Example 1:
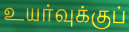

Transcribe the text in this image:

உயர்வுக்குப்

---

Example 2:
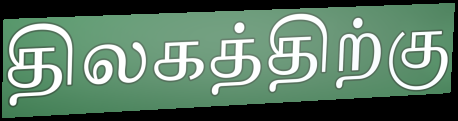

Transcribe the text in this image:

திலகத்திற்கு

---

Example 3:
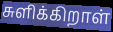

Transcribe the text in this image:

சுளிக்கிறாள்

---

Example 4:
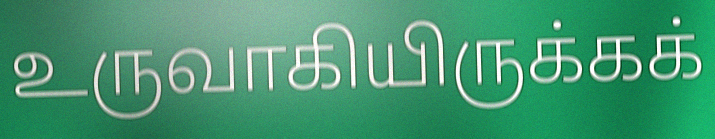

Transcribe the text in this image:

உருவாகியிருக்கக்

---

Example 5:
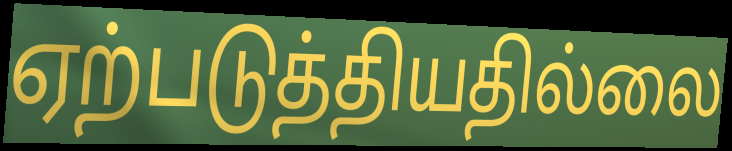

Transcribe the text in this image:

ஏற்படுத்தியதில்லை